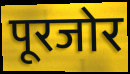
पूरजोर